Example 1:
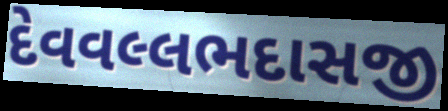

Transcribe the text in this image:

દેવવલ્લભદાસજી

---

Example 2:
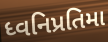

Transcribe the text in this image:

ધ્વનિપ્રતિમા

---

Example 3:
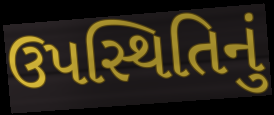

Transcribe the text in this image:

ઉપસ્થિતિનું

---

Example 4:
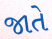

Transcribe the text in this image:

જાતે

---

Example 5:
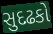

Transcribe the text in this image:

સુદઢકો